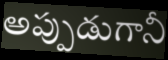
అప్పుడుగానీ